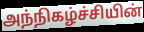
அந்நிகழ்ச்சியின்